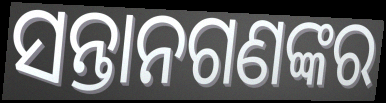
ସନ୍ତାନଗଣଙ୍କର